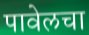
पावेलचा